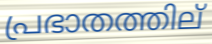
പ്രഭാതത്തില്